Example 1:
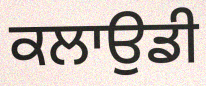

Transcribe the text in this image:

ਕਲਾਉਡੀ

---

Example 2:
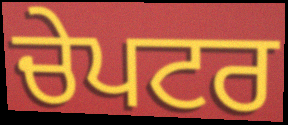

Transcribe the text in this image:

ਚੇਪਟਰ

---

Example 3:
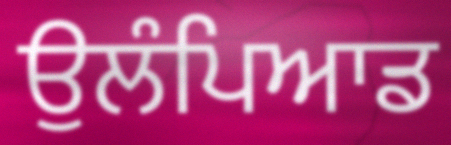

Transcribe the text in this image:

ਉਲੰਪਿਆਡ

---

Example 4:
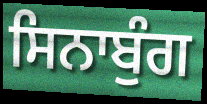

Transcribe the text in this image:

ਸਿਨਾਬੁੰਗ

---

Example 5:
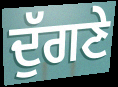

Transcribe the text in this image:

ਦੁੱਗਣੇ